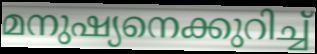
മനുഷ്യനെക്കുറിച്ച്